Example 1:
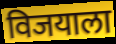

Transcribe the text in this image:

विजयाला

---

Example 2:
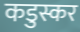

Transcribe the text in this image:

कडुस्कर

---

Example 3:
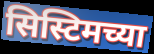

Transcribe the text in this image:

सिस्टिमच्या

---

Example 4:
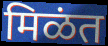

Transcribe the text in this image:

मिळंत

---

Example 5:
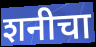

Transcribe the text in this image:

शनीचा